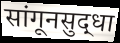
सांगूनसुद्धा